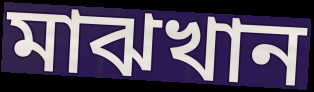
মাঝখান